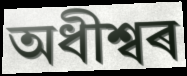
অধীশ্বৰ